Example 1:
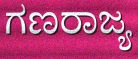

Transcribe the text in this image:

ಗಣರಾಜ್ಯ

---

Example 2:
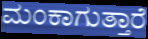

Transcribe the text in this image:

ಮಂಕಾಗುತ್ತಾರೆ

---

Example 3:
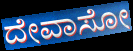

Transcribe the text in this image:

ದೇವಾಸೋ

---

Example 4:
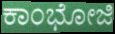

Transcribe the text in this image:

ಕಾಂಭೋಜಿ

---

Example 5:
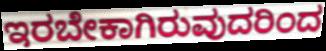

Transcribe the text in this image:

ಇರಬೇಕಾಗಿರುವುದರಿಂದ